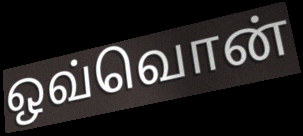
ஒவ்வொன்